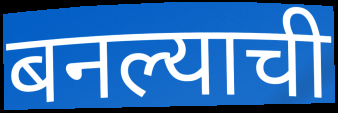
बनल्याची